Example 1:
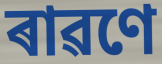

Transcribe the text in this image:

ৰাৱণে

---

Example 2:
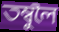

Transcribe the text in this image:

তম্বুলৈ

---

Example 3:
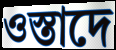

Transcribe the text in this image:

ওস্তাদে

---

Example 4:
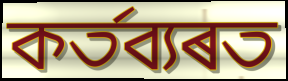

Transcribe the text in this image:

কৰ্তব্যৰত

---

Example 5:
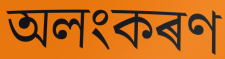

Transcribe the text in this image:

অলংকৰণ